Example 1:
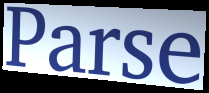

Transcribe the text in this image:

Parse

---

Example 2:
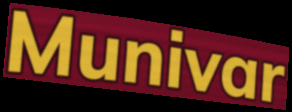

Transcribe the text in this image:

Munivar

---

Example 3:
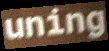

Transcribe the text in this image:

uning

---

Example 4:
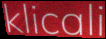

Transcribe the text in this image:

klicali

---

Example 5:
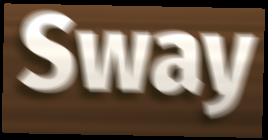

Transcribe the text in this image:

Sway